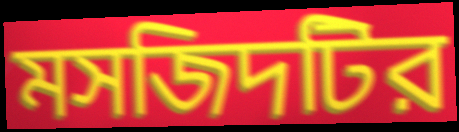
মসজিদটির